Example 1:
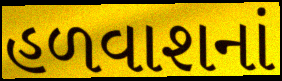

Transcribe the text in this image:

હળવાશનાં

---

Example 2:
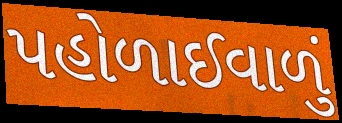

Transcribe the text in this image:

પહોળાઈવાળું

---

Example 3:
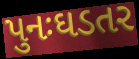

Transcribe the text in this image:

પુનઃઘડતર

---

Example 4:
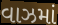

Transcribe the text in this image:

વાઝમાં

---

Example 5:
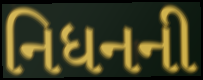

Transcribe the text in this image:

નિધનની